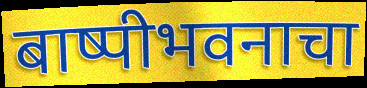
बाष्पीभवनाचा